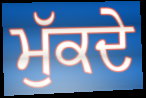
ਮੁੱਕਦੇ